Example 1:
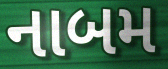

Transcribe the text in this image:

નાબમ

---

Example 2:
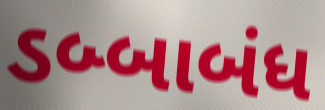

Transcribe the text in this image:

ડબ્બાબંધ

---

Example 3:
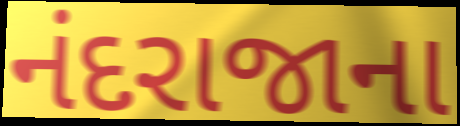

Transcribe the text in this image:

નંદરાજાના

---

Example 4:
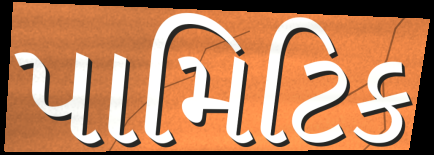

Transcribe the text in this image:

પામિટિક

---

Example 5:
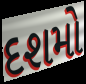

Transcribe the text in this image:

દશમો